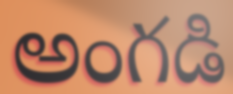
అంగడి